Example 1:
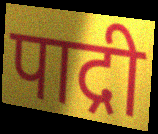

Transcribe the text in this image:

पाद्री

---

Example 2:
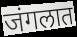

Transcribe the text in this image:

जंगलात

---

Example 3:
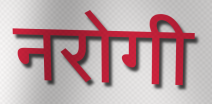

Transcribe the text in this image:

नरोगी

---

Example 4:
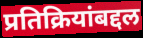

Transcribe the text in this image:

प्रतिक्रियांबद्दल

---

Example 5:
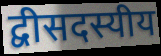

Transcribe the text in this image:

द्वीसदस्यीय